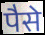
पैसे